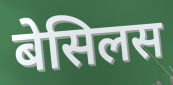
बेसिलस